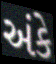
અંકે